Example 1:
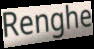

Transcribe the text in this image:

Renghe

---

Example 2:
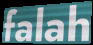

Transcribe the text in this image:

falah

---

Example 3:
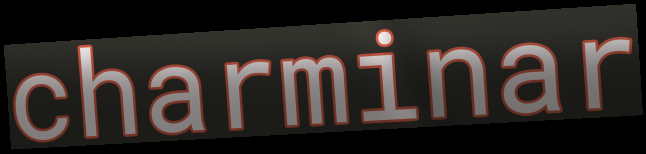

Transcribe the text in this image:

charminar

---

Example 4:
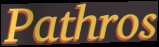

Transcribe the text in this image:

Pathros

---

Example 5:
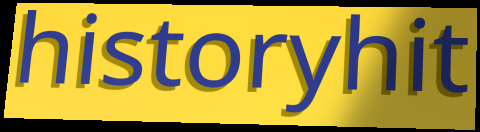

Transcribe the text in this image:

historyhit